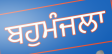
ਬਹੁਮੰਜਲਾ